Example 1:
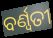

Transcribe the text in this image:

ବର୍ଣ୍ବତୀ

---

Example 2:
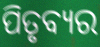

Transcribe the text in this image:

ପିତୃବ୍ୟର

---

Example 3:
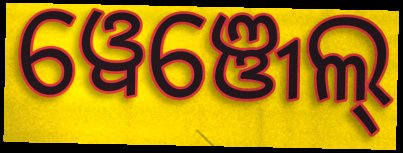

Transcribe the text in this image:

ୱେଞ୍ଜେଲ୍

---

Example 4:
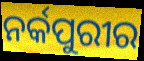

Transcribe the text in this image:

ନର୍କପୁରୀର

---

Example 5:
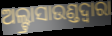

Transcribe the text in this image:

ଅଲ୍ଟ୍ରାସାଉଣ୍ଡଦ୍ୱାରା